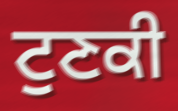
ਟੁਣਕੀ